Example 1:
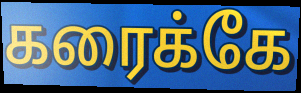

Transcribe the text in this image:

கரைக்கே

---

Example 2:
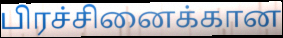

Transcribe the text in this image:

பிரச்சினைக்கான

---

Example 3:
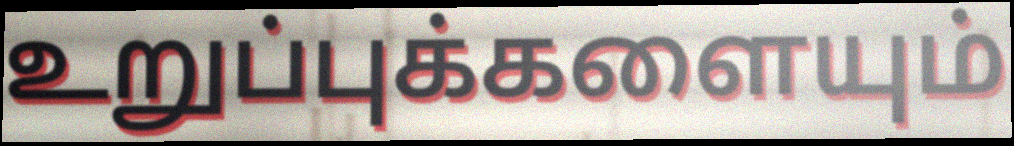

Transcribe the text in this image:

உறுப்புக்களையும்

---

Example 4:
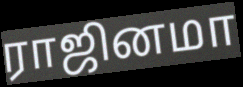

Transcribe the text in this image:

ராஜினமா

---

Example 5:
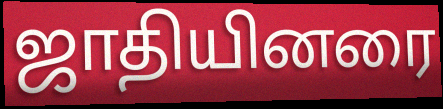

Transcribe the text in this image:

ஜாதியினரை